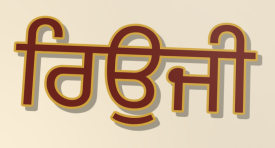
ਰਿਉਜੀ